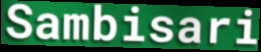
Sambisari